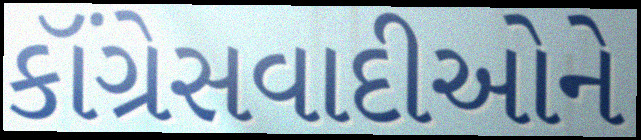
કૉંગ્રેસવાદીઓને